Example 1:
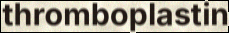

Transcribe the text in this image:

thromboplastin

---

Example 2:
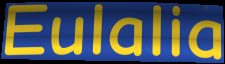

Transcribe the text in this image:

Eulalia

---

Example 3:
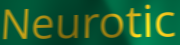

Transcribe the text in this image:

Neurotic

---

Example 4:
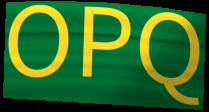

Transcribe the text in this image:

OPQ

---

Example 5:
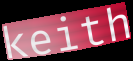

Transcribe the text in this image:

keith